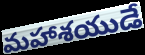
మహాశయుడే